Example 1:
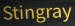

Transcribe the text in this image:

Stingray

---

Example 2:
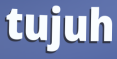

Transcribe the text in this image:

tujuh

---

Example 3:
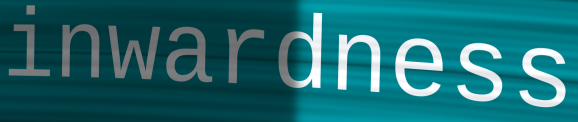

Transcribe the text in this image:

inwardness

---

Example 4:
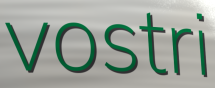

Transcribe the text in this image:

vostri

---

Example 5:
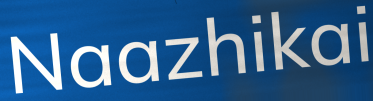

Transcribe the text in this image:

Naazhikai